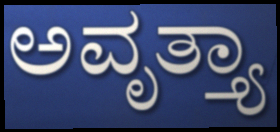
ಅವೃತ್ತ್ಯಾ